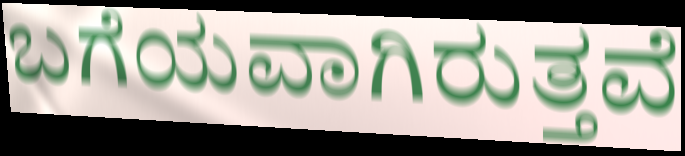
ಬಗೆಯವಾಗಿರುತ್ತವೆ